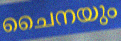
ചൈനയും